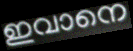
ഇവാനെ